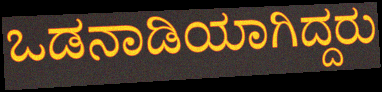
ಒಡನಾಡಿಯಾಗಿದ್ದರು